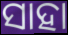
ସାହା